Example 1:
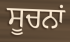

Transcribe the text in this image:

ਸੂਚਨਾਂ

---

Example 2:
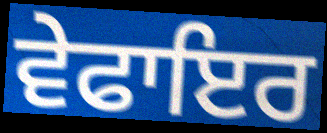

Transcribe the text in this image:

ਵੇਫਾਇਰ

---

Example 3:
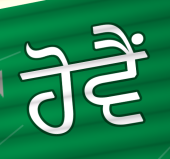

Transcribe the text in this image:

ਹੋਵੈਂ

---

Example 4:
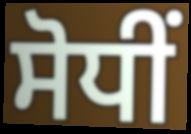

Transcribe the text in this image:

ਸੋਧੀਂ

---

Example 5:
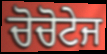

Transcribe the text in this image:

ਚੋਚੋਟੇਜ